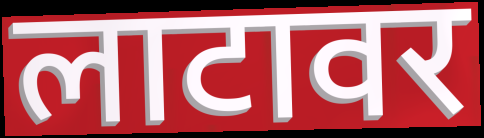
लाटावर